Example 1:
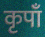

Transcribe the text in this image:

कृपाँ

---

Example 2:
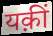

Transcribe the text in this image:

यक़ीं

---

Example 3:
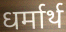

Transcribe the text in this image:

धर्मार्थ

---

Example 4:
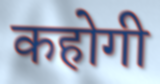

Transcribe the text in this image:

कहोगी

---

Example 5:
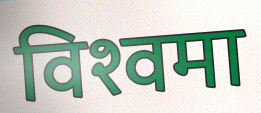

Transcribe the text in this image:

विश्वमा